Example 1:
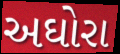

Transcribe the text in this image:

અઘોરા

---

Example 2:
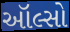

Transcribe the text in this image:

ઑલ્સો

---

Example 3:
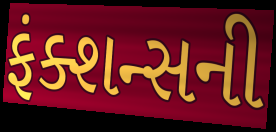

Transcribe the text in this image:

ફંક્શન્સની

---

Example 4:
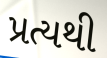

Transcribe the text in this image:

પ્રત્યથી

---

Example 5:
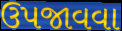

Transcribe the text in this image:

ઉપજાવવા